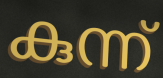
കുന്ന്